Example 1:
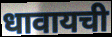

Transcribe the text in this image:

धावायची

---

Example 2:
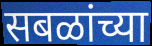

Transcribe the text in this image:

सबळांच्या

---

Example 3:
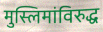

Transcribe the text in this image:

मुस्लिमांविरुद्ध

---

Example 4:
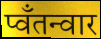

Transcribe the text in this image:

प्वॅंतन्वार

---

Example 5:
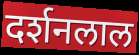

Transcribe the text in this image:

दर्शनलाल